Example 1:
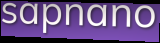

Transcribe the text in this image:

sapnano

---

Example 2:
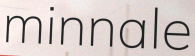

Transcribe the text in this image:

minnale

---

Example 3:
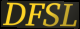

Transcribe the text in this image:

DFSL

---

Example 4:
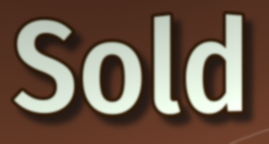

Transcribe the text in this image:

Sold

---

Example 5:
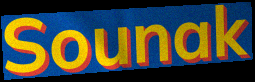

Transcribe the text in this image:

Sounak